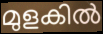
മുളകിൽ